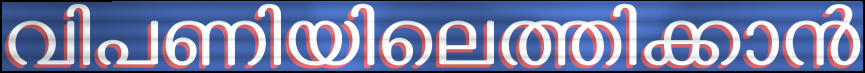
വിപണിയിലെത്തിക്കാൻ